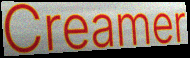
Creamer